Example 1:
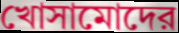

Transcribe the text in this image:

খোসামোদের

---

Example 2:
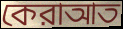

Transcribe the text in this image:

কেরাআত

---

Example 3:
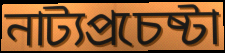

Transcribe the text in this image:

নাট্যপ্রচেষ্টা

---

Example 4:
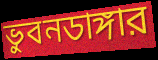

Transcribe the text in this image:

ভুবনডাঙ্গার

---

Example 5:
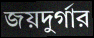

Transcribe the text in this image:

জয়দুর্গার